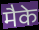
मैके